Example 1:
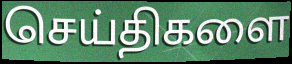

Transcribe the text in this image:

செய்திகளை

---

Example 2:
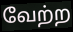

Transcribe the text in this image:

வேற்ற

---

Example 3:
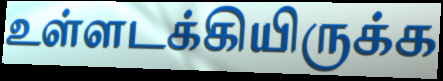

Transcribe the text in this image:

உள்ளடக்கியிருக்க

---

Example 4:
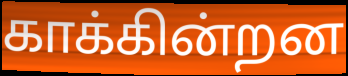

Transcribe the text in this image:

காக்கின்றன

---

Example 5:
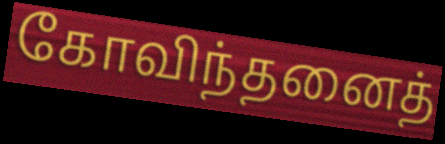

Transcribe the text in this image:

கோவிந்தனைத்